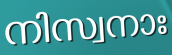
നിസ്വനാഃ